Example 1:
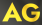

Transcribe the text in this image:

AG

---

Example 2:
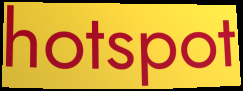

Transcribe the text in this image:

hotspot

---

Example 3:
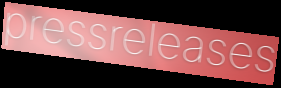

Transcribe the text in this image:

pressreleases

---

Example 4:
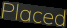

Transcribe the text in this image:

Placed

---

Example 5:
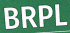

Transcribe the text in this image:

BRPL